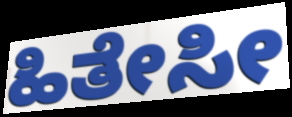
ಹಿತೇಸೀ